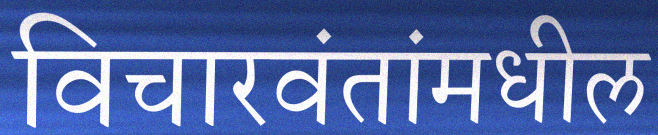
विचारवंतांमधील